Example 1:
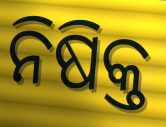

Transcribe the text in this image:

ନିଷିକ୍ତ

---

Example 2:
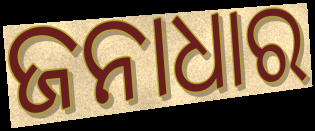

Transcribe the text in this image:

ଜନାଧାର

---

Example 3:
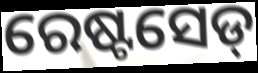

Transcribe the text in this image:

ରେଷ୍ଟସେଡ୍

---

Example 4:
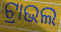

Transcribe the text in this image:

ଟ୍ରାଭଲ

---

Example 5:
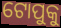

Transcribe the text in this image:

ଟୋପୁକୁ